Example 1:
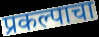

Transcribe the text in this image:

प्रकल्पाचा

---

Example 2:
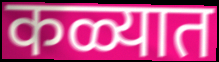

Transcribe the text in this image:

कळ्यात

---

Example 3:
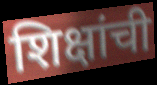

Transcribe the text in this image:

शिक्षांची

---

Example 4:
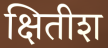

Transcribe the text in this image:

क्षितीश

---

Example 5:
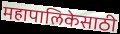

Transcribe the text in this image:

महापालिकेसाठी